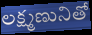
లక్ష్మణునితో